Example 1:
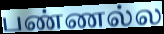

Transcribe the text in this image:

பண்ணல்ல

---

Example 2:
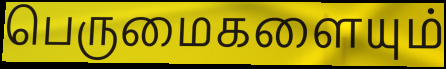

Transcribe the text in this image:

பெருமைகளையும்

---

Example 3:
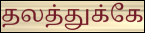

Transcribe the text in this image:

தலத்துக்கே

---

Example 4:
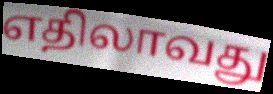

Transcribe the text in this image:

எதிலாவது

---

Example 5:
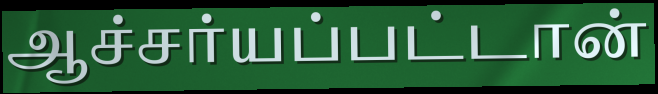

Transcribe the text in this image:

ஆச்சர்யப்பட்டான்